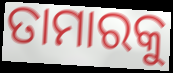
ତାମାରକୁ